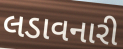
લડાવનારી